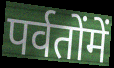
पर्वतोंमें